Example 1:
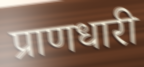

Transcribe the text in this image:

प्राणधारी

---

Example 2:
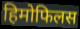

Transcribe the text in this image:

हिमोफिलस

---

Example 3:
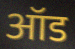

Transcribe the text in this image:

ऑड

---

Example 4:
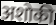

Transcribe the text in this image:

अशोकी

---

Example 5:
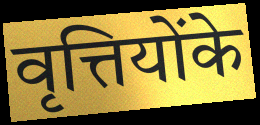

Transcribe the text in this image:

वृत्तियोंके